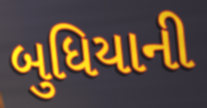
બુધિયાની